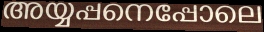
അയ്യപ്പനെപ്പോലെ